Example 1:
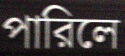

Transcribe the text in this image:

পারিলে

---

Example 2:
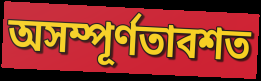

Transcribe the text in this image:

অসম্পূর্ণতাবশত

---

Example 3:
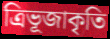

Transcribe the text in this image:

ত্রিভূজাকৃতি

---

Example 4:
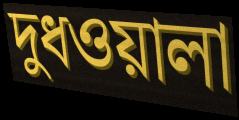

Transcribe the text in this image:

দুধওয়ালা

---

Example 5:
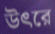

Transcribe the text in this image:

উৎরে